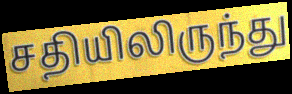
சதியிலிருந்து